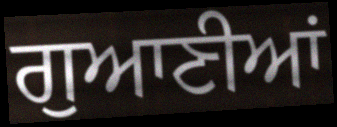
ਗੁਆਣੀਆਂ